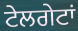
ਟੇਲਗੇਟਾਂ